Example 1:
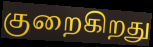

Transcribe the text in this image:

குறைகிறது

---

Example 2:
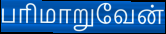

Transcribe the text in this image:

பரிமாறுவேன்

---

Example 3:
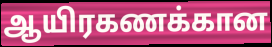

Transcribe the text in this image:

ஆயிரகணக்கான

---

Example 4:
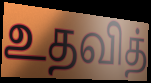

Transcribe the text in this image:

உதவித்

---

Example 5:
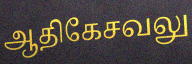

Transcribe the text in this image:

ஆதிகேசவலு